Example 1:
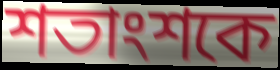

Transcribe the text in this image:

শতাংশকে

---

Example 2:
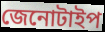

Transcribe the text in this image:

জেনোটাইপ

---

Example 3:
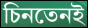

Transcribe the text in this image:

চিনতেনই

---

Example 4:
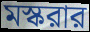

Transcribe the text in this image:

মস্করার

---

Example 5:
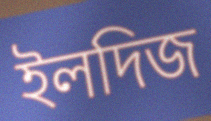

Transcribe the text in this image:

ইলদিজ